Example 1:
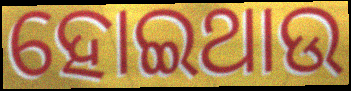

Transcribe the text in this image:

ହୋଇଥାଉ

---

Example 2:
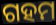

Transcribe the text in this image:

ଗହମ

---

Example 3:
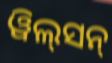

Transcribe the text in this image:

ୱିଲ୍‌ସନ୍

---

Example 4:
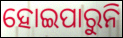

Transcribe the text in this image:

ହୋଇପାରୁନି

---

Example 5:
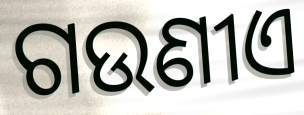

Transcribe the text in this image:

ଗଉଣୀଏ